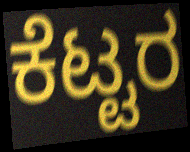
ಕೆಟ್ಟರ